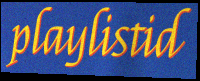
playlistid